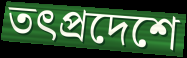
তৎপ্রদেশে